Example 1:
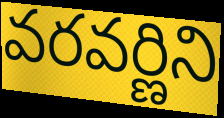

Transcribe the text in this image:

వరవర్ణిని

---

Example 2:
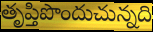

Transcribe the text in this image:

తృప్తిపొందుచున్నది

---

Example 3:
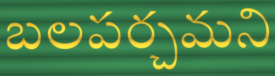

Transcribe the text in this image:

బలపర్చమని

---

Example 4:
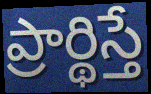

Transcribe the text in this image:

ప్రార్థిస్తే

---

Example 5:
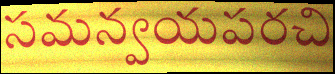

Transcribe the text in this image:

సమన్వయపరచి